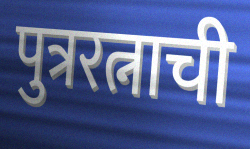
पुत्ररत्नाची